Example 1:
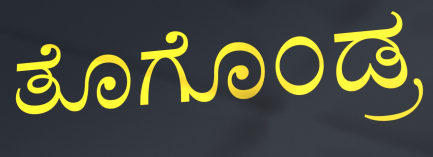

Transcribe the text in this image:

ತೊಗೊಂಡ್ರ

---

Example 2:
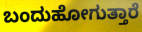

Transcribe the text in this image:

ಬಂದುಹೋಗುತ್ತಾರೆ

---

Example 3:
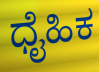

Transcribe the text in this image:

ಧೈಹಿಕ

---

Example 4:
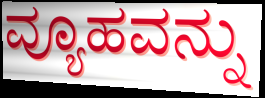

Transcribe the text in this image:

ವ್ಯೂಹವನ್ನು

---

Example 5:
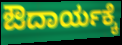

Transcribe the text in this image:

ಔದಾರ್ಯಕ್ಕೆ